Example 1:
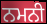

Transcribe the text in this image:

ਨਮਨੀ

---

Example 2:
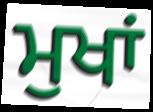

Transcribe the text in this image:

ਮੁਖਾਂ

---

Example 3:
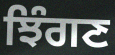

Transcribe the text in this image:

ਝਿੰਗਣ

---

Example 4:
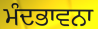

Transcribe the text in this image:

ਮੰਦਭਾਵਨਾ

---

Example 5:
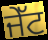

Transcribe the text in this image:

ਜੇੱਟ